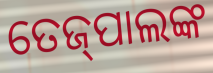
ତେଜ୍‌ପାଲଙ୍କ